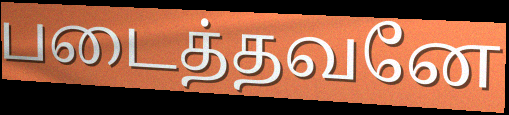
படைத்தவனே